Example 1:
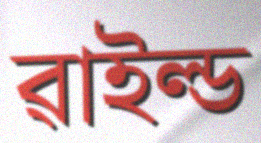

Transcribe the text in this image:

ৱাইল্ড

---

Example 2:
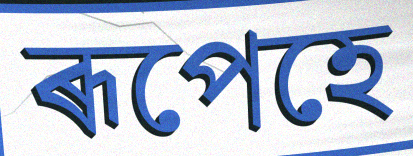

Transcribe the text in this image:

ৰূপেহে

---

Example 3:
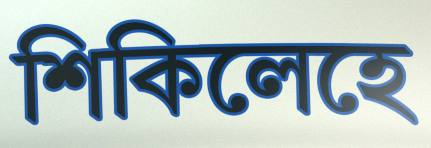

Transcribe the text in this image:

শিকিলেহে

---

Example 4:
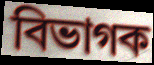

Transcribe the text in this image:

বিভাগক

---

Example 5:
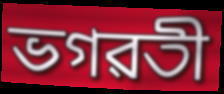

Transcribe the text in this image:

ভগৱতী